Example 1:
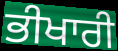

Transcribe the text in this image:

ਭੀਖਾਰੀ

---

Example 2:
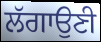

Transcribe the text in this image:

ਲੱਗਾਉਣੀ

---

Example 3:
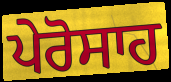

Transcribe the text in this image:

ਪੇਰੋਸਾਹ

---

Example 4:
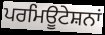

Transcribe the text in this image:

ਪਰਮਿਊਟੇਸ਼ਨਾਂ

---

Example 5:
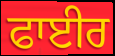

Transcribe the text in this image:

ਫਾਈਰ